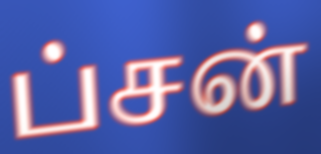
ப்சன்